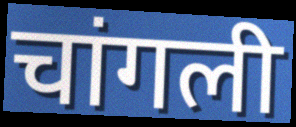
चांगली